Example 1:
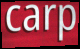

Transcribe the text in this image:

carp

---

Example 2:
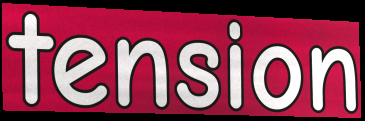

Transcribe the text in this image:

tension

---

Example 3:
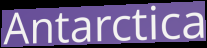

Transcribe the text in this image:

Antarctica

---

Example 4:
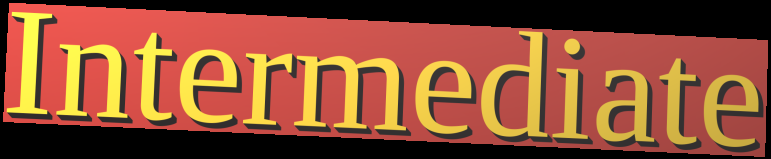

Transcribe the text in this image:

Intermediate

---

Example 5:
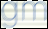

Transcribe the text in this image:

gm